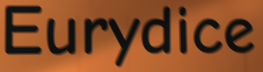
Eurydice